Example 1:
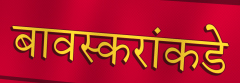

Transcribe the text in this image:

बावस्करांकडे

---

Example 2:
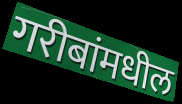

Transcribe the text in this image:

गरीबांमधील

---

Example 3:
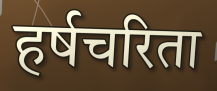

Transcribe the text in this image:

हर्षचरिता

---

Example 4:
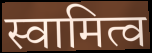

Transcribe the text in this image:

स्वामित्व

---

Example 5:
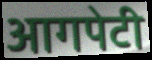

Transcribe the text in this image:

आगपेटी